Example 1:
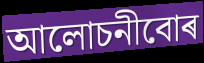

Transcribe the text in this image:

আলোচনীবোৰ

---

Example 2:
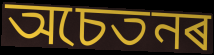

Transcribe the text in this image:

অচেতনৰ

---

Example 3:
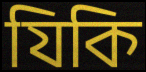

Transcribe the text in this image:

যিকি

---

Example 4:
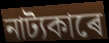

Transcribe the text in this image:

নাট্যকাৰে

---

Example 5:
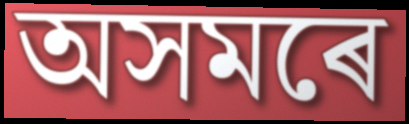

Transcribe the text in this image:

অসমৰে